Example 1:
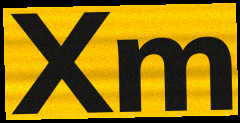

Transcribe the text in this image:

Xm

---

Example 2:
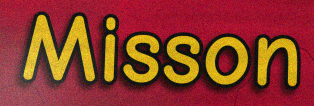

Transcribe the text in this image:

Misson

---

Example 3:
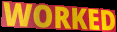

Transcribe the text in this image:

WORKED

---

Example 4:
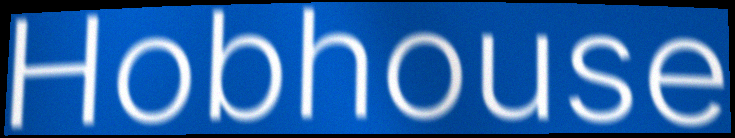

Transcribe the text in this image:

Hobhouse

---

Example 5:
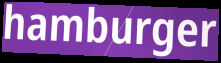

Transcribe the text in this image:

hamburger